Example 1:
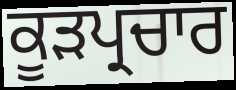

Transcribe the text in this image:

ਕੂੜਪ੍ਰਚਾਰ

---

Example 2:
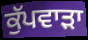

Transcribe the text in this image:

ਕੁੱਪਵਾੜਾ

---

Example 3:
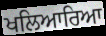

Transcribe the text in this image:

ਖਲਿਆਰਿਆ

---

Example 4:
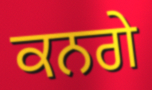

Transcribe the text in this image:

ਕਨਗੇ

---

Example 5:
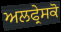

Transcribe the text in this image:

ਅਲਫ੍ਰੇਸਕੋ